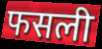
फसली